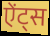
ऐंट्स